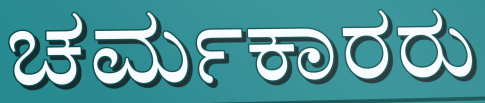
ಚರ್ಮಕಾರರು